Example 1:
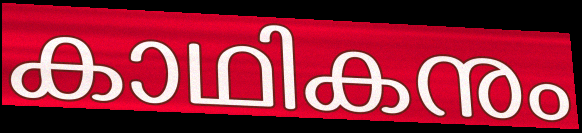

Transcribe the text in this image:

കാഥികനും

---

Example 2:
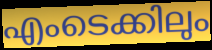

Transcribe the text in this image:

എംടെക്കിലും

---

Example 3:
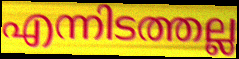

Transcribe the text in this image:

എന്നിടത്തല്ല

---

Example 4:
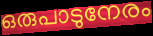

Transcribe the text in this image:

ഒരുപാടുനേരം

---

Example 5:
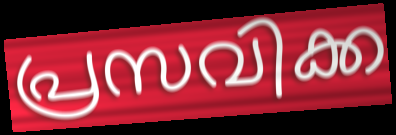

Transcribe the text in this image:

പ്രസവിക്ക